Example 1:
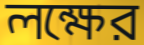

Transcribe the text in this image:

লক্ষের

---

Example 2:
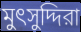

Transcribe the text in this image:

মুৎসুদ্দিরা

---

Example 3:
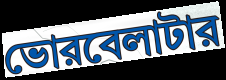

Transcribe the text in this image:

ভোরবেলাটার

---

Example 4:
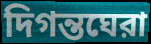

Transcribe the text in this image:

দিগন্তঘেরা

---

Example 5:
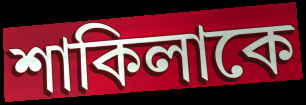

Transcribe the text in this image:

শাকিলাকে